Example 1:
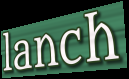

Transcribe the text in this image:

lanch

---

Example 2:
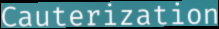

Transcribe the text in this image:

Cauterization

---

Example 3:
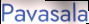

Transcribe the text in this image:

Pavasala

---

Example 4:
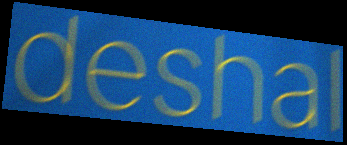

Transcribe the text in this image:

deshal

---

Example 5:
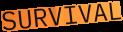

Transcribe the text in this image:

SURVIVAL